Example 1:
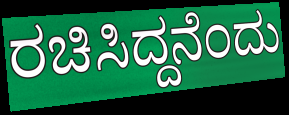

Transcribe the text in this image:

ರಚಿಸಿದ್ದನೆಂದು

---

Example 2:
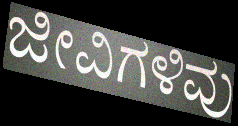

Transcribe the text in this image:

ಜೀವಿಗಳಿವು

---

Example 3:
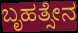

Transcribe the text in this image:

ಬೃಹತ್ಸೇನ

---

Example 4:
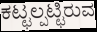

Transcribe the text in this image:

ಕಟ್ಟಲ್ಪಟ್ಟಿರುವ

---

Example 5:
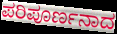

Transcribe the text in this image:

ಪರಿಪೂರ್ಣನಾದ